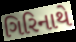
ગિરિનાથે